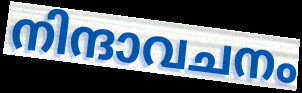
നിന്ദാവചനം